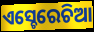
ଏସ୍ଚେରେଚିଆ